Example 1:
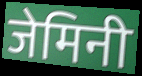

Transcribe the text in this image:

जेमिनी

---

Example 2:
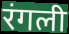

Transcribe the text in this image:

रंगली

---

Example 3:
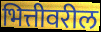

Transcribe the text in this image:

भित्तीवरील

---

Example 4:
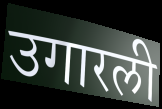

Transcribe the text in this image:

उगारली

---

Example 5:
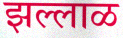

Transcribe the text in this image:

झल्लाळ